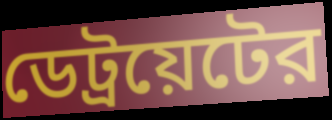
ডেট্রয়েটের